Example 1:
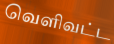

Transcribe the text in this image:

வெளிவட்ட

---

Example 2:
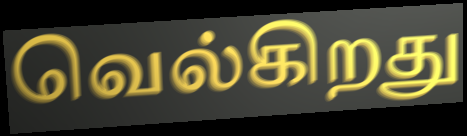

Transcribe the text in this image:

வெல்கிறது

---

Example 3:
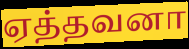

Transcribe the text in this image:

ஏத்தவனா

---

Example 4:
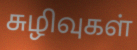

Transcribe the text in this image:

சுழிவுகள்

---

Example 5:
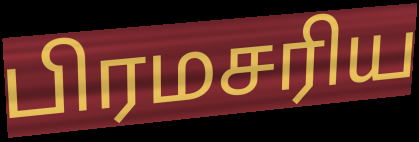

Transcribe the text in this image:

பிரமசரிய